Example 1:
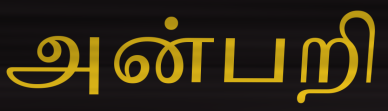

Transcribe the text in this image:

அன்பறி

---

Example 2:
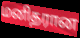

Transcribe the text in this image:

மனிதரான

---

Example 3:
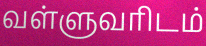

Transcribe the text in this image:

வள்ளுவரிடம்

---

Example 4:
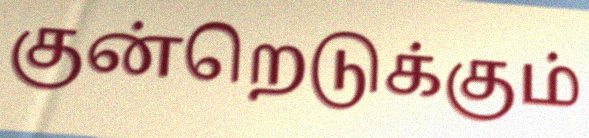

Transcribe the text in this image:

குன்றெடுக்கும்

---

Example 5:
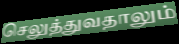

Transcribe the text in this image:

செலுத்துவதாலும்